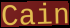
Cain